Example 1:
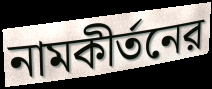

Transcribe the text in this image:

নামকীর্তনের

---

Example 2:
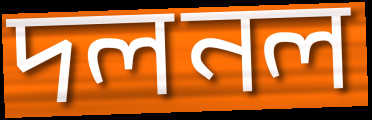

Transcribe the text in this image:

দলনল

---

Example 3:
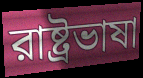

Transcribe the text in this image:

রাষ্ট্রভাষা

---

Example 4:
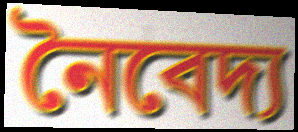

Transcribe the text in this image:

নৈবেদ্য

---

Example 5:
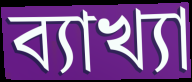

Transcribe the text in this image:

ব্যাখ্যা